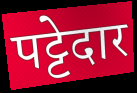
पट्टेदार